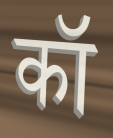
कॉ